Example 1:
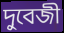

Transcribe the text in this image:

দুবেজী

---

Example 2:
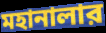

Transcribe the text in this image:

মহানালার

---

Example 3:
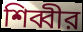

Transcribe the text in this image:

শিব্বীর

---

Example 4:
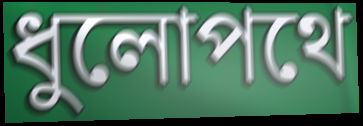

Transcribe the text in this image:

ধুলোপথে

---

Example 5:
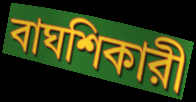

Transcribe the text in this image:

বাঘশিকারী